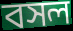
বসল